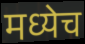
मध्‍येच